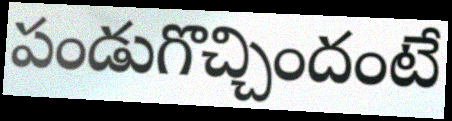
పండుగొచ్చిందంటే